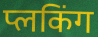
प्लकिंग